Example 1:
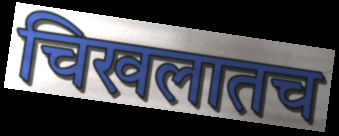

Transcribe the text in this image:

चिखलातच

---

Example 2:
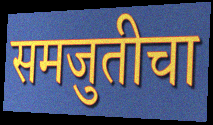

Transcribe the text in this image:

समजुतीचा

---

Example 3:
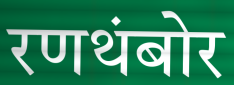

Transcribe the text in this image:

रणथंबोर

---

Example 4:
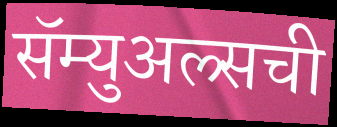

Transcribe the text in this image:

सॅम्युअल्सची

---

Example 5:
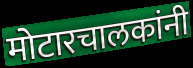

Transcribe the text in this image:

मोटारचालकांनी